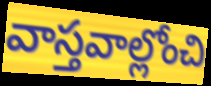
వాస్తవాల్లోంచి